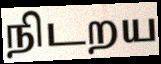
நிடறய